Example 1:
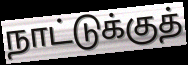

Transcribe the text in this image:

நாட்டுக்குத்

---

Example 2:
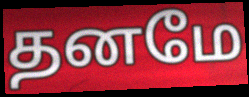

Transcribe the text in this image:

தனமே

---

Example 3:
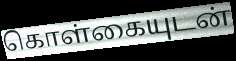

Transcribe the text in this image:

கொள்கையுடன்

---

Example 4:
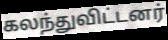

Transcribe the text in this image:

கலந்துவிட்டனர்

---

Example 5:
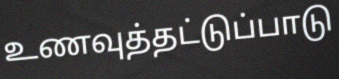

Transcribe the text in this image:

உணவுத்தட்டுப்பாடு